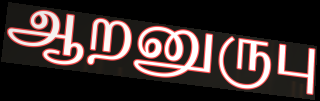
ஆறனுருபு